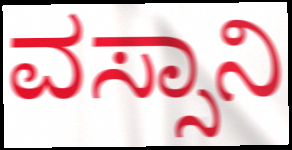
ವಸ್ಸಾನಿ